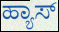
ಹ್ಯಾಸ್